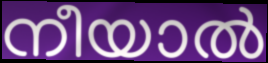
നീയാൽ